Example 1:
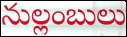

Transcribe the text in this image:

నుల్లంబులు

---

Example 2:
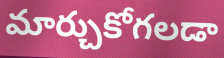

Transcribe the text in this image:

మార్చుకోగలడా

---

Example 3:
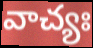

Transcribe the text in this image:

వాచ్యః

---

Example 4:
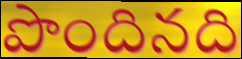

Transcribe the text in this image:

పొందినది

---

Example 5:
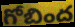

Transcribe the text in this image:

గోబింద